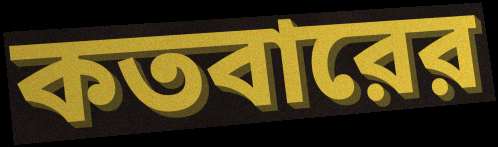
কতবারের